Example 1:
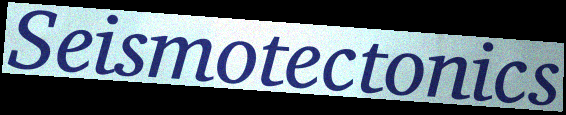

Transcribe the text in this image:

Seismotectonics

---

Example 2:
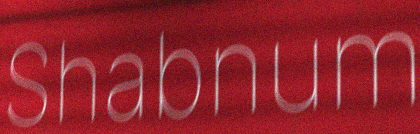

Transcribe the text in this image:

Shabnum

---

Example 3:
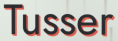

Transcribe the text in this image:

Tusser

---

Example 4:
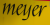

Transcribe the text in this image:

meyer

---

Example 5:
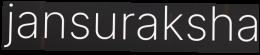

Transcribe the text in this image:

jansuraksha